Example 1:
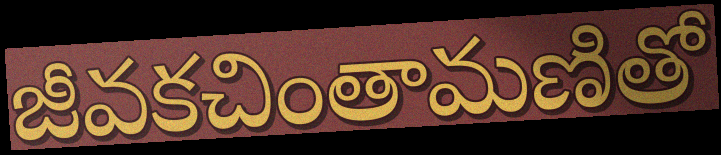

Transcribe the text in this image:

జీవకచింతామణితో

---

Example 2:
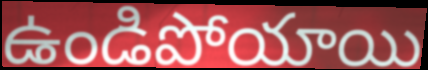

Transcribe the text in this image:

ఉండిపోయాయి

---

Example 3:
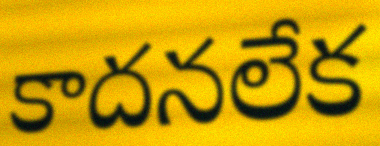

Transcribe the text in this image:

కాదనలేక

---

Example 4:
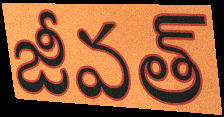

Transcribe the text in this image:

జీవత్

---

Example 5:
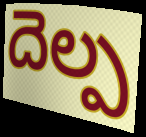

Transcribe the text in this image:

దెల్ప